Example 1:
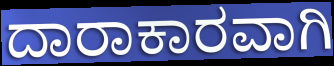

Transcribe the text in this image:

ದಾರಾಕಾರವಾಗಿ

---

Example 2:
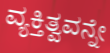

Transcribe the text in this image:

ವ್ಯಕ್ತಿತ್ವವನ್ನೇ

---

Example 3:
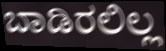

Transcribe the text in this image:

ಬಾಡಿರಲಿಲ್ಲ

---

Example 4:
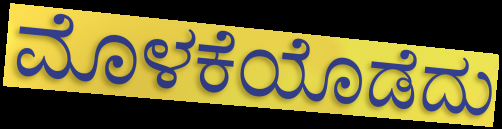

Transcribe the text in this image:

ಮೊಳಕೆಯೊಡೆದು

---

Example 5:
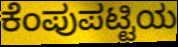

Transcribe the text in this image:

ಕೆಂಪುಪಟ್ಟಿಯ